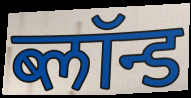
ब्लॉन्ड